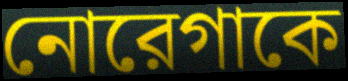
নোরেগাকে